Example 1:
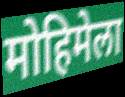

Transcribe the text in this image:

मोहिमेला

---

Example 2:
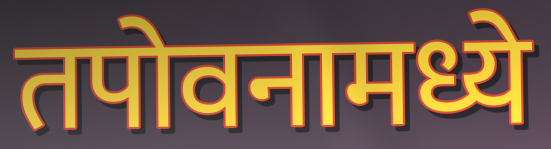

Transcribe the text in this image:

तपोवनामध्ये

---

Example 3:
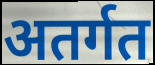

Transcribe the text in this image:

अतर्गत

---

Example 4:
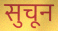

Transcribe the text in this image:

सुचून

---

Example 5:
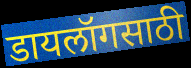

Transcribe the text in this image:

डायलॉगसाठी